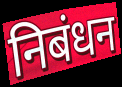
निबंधन